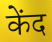
केंद